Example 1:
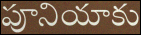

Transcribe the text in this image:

పూనియాకు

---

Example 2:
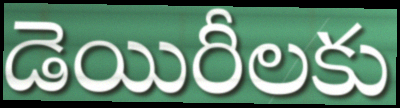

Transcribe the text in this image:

డెయిరీలకు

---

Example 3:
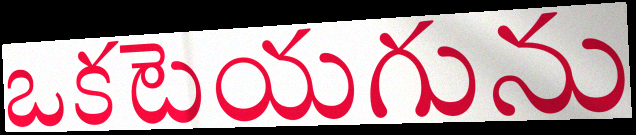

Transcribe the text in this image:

ఒకటెయగును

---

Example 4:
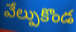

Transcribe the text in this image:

వేల్పుకొండ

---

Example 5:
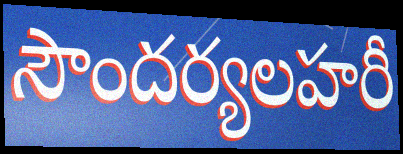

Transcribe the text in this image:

సౌందర్యలహరీ